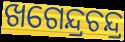
ଖଗେନ୍ଦ୍ରଚନ୍ଦ୍ର